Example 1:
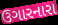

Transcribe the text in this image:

ઉગારનારા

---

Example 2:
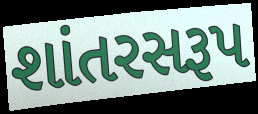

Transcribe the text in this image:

શાંતરસરૂપ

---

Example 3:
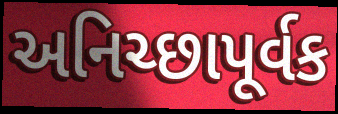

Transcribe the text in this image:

અનિચ્છાપૂર્વક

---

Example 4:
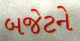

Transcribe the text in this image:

બજેટને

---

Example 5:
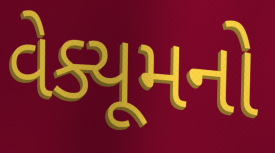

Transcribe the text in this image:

વેક્યૂમનો